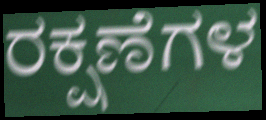
ರಕ್ಷಣೆಗಳ